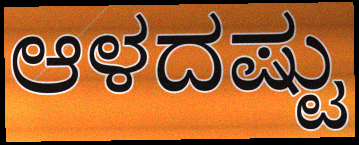
ಆಳದಷ್ಟು